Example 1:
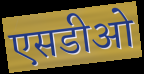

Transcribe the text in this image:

एसडीओ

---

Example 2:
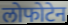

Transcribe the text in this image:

लोफोटेन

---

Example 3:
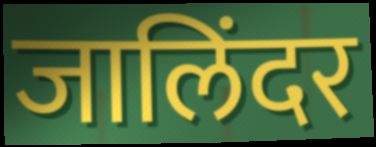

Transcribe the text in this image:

जालिंदर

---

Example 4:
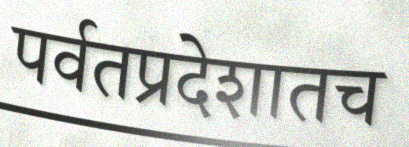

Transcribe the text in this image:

पर्वतप्रदेशातच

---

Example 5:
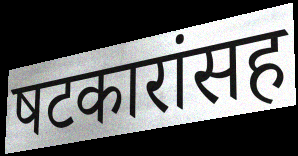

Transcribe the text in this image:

षटकारांसह